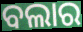
ବଲାର